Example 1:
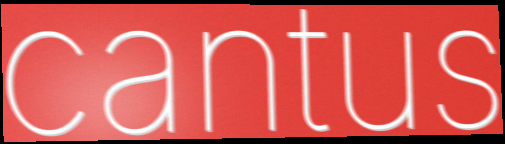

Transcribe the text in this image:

cantus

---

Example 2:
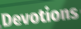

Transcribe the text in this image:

Devotions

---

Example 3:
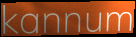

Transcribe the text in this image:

kannum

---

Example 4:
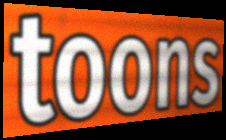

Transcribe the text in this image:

toons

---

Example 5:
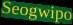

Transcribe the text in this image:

Seogwipo